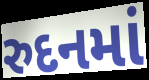
રુદનમાં